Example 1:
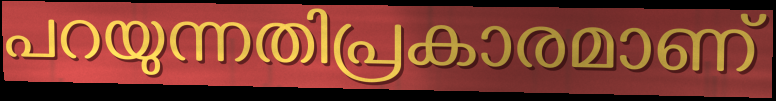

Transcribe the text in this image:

പറയുന്നതിപ്രകാരമാണ്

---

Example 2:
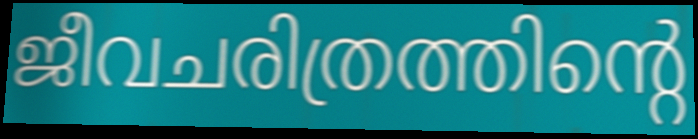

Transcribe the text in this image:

ജീവചരിത്രത്തിന്റെ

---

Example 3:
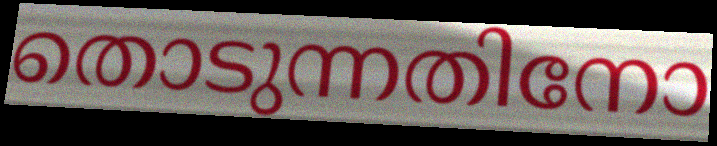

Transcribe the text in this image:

തൊടുന്നതിനോ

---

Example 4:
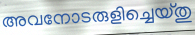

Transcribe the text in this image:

അവനോടരുളിച്ചെയ്തു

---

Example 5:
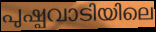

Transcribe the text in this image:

പുഷ്പവാടിയിലെ